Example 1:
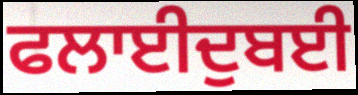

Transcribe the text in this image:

ਫਲਾਈਦੁਬਈ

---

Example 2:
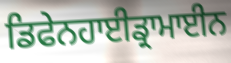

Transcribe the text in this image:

ਡਿਫੇਨਹਾਈਡ੍ਰਾਮਾਈਨ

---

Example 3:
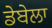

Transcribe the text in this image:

ਡੇਬੇਲਾ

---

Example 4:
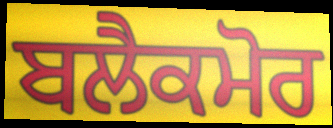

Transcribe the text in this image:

ਬਲੈਕਮੋਰ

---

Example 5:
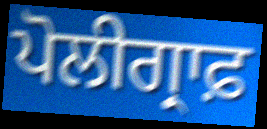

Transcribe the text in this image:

ਪੋਲੀਗ੍ਰਾਫ਼